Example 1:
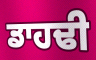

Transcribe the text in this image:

ਡਾਹਢੀ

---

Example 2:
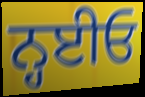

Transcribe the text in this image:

ਨ੍ਹਈਓ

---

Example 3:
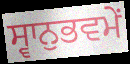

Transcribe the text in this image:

ਸ੍ਵਾਨੁਭਵਮੇਂ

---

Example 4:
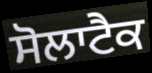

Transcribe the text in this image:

ਸੋਲਾਟੈਕ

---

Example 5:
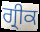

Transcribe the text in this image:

ਗ੍ਰੀਕ